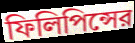
ফিলিপিন্সের